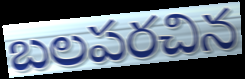
బలపరచిన